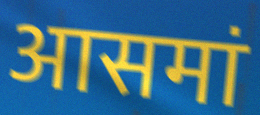
आसमां